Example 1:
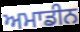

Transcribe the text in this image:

ਅਮਾਡੀਨ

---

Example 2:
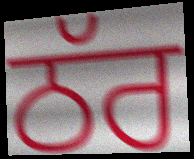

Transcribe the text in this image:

ਠੱਰ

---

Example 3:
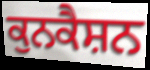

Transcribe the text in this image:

ਕੁਨਕੈਸ਼ਨ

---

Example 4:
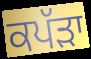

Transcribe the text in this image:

ਕਪੱੜਾ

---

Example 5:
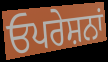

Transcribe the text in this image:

ਓਪਰੇਸ਼ਨਾਂ